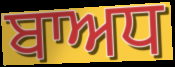
ਬਾਅਧ